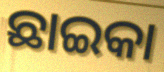
ଛାଇକା